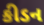
કીડન